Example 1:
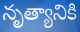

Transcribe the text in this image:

నృత్యానికి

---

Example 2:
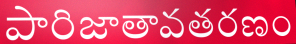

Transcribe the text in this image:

పారిజాతావతరణం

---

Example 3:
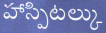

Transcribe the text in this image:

హాస్పిటల్కు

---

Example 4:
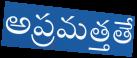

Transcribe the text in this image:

అప్రమత్తతే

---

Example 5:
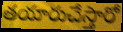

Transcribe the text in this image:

తయారుచేస్తారో